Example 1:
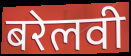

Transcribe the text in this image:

बरेलवी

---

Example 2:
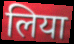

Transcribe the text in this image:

लिया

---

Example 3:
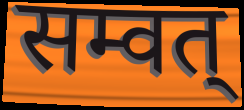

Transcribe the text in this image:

सम्वत्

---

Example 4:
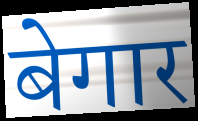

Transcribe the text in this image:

बेगार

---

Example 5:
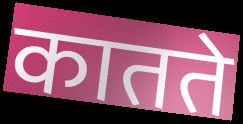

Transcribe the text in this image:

कातते